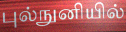
புல்நுனியில்